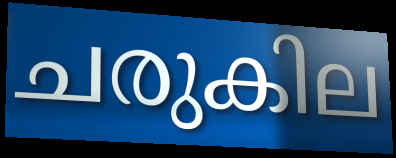
ചരുകില